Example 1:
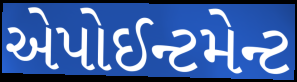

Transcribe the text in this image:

એપોઈન્ટમેન્ટ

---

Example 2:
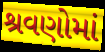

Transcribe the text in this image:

શ્રવણોમાં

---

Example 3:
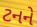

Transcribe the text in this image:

ટનને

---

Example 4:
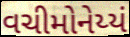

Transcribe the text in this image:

વચીમોનેય્યં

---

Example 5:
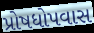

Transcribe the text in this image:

પ્રોષધોપવાસ